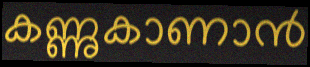
കണ്ണുകാണാൻ